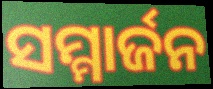
ସମ୍ମାର୍ଜନ